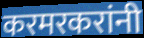
करमरकरांनी